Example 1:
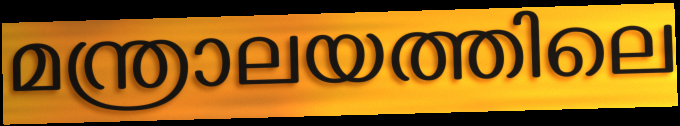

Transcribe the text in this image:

മന്ത്രാലയത്തിലെ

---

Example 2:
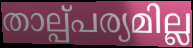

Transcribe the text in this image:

താല്പ്പര്യമില്ല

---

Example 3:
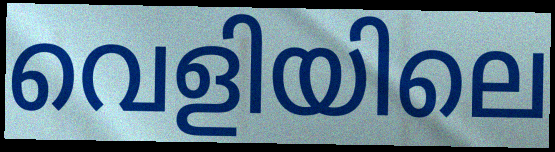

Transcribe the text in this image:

വെളിയിലെ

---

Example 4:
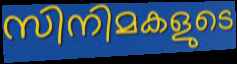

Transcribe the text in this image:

സിനിമകളുടെ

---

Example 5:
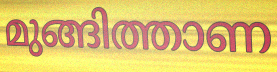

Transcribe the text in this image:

മുങ്ങിത്താണ